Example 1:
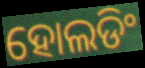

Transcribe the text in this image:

ହୋଲଡିଂ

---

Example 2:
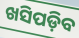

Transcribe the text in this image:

ଖସିପଡ଼ିବ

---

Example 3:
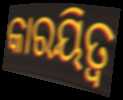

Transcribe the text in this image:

କାରୟିତ୍ୱ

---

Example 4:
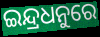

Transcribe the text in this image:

ଇନ୍ଦ୍ରଧନୁରେ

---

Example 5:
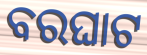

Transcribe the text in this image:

ବରଘାଟ